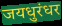
जयधुरंधर